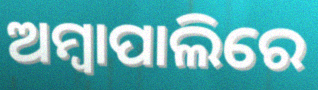
ଅମ୍ବାପାଲିରେ